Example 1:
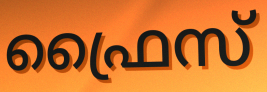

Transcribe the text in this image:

ഫ്രൈസ്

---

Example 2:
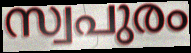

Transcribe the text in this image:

സ്വപുരം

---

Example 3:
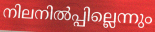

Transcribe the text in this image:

നിലനിൽപ്പില്ലെന്നും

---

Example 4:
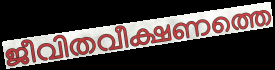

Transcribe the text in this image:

ജീവിതവീക്ഷണത്തെ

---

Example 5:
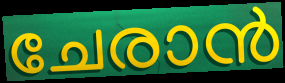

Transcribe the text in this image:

ചേരാൻ